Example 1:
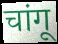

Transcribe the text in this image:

चांगू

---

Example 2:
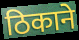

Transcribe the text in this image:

ठिकाने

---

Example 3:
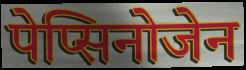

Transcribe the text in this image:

पेप्सिनोजेन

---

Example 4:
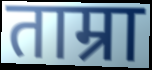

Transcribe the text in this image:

ताम्रा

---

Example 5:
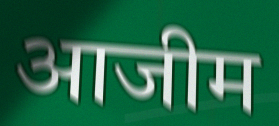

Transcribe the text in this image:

आजीम